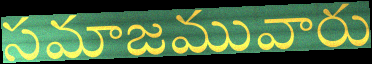
సమాజమువారు